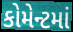
કોમેન્ટમાં